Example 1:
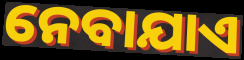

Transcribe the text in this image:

ନେବାଯାଏ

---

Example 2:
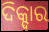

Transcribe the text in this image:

ଦିକ୍ଦାର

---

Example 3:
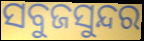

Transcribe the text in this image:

ସବୁଜସୁନ୍ଦର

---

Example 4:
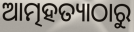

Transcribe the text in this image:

ଆତ୍ମହତ୍ୟାଠାରୁ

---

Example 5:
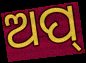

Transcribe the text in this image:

ଅପ୍